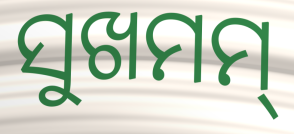
ସୁଖମମ୍